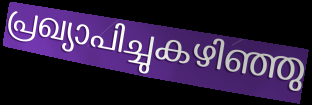
പ്രഖ്യാപിച്ചുകഴിഞ്ഞു